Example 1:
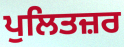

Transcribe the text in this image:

ਪੁਲਿਤਜ਼ਰ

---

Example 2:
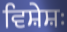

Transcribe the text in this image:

ਵਿਸ਼ੇਸ਼ਃ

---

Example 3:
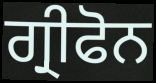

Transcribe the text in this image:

ਗ੍ਰੀਫੋਨ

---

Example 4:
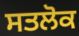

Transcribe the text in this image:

ਸਤਲੋਕ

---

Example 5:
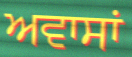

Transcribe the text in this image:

ਅਵਾਸਾਂ